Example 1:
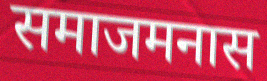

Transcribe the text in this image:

समाजमनास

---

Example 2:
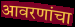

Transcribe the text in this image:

आवरणांचा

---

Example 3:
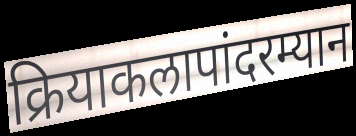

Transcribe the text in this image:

क्रियाकलापांदरम्यान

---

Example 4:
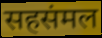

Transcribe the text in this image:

सहसंमल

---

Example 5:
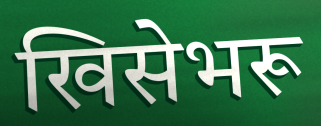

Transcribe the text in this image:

खिसेभरू